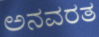
ಅನವರತ